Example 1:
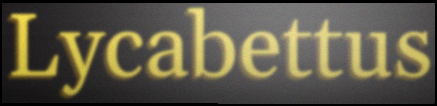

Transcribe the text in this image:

Lycabettus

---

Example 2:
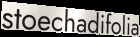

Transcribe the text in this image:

stoechadifolia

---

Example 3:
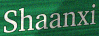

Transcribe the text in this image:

Shaanxi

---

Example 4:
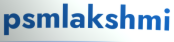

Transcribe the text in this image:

psmlakshmi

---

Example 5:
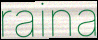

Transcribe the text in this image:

raina